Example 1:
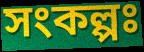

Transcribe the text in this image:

সংকল্পঃ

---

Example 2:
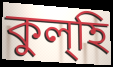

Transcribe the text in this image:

কুল্হি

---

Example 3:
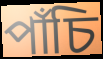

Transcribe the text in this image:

পাঁচি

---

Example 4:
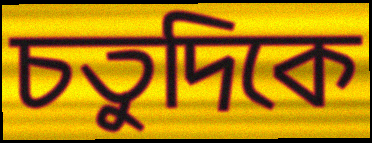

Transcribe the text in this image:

চতুদিকে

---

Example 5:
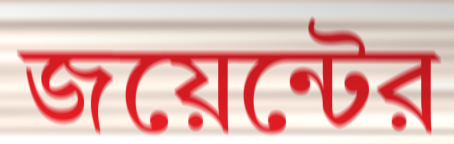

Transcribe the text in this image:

জয়েন্টের